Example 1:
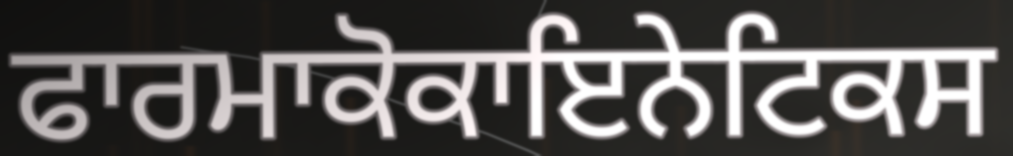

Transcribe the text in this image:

ਫਾਰਮਾਕੋਕਾਇਨੇਟਿਕਸ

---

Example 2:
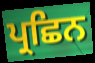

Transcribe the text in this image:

ਪ੍ਰਛਿਨ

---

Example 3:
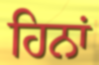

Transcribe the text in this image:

ਹਿਨਾਂ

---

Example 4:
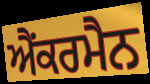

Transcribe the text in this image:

ਐਂਕਰਮੈਨ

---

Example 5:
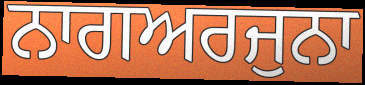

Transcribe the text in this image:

ਨਾਗਅਰਜੁਨਾ